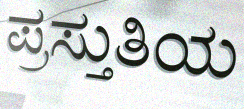
ಪ್ರಸ್ತುತಿಯ